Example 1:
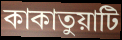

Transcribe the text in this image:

কাকাতুয়াটি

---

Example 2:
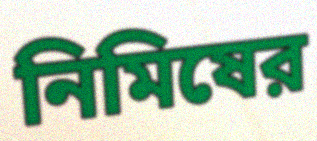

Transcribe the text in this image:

নিমিষের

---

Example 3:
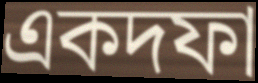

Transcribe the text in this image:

একদফা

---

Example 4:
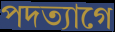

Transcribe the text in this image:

পদত্যাগে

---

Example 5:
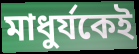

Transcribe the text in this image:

মাধুর্যকেই